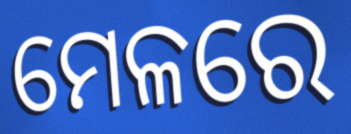
ମେଳରେ